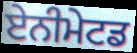
ਏਨੀਮੇਟਡ